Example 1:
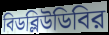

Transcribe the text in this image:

বিডব্লিউডিবির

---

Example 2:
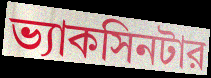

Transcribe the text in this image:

ভ্যাকসিনটার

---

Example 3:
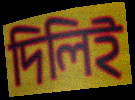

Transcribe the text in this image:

দিলিই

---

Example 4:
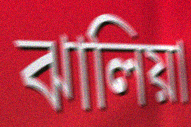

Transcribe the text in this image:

ঝালিয়া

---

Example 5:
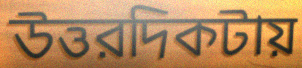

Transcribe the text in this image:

উত্তরদিকটায়